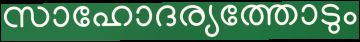
സാഹോദര്യത്തോടും